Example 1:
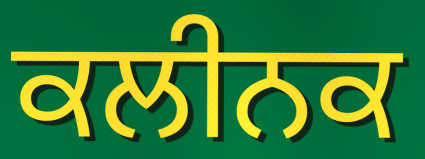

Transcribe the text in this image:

ਕਲੀਨਕ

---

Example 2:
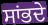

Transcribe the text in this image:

ਸਾਂਭਦੇ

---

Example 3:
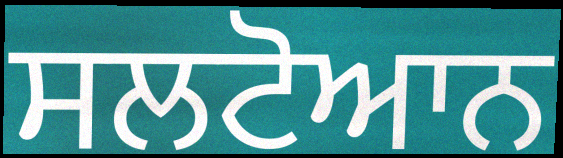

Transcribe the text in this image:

ਸਲਟੋਆਨ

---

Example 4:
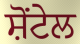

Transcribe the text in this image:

ਸ਼ੋਂਟੇਲ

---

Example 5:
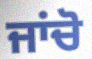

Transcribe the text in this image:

ਜਾਂਚੋ